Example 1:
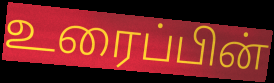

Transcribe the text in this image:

உரைப்பின்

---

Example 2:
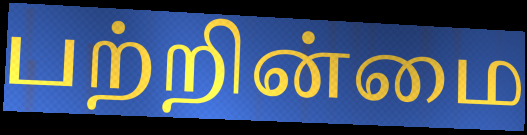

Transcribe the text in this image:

பற்றின்மை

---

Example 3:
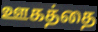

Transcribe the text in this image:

ஊகத்தை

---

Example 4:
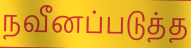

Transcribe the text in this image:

நவீனப்படுத்த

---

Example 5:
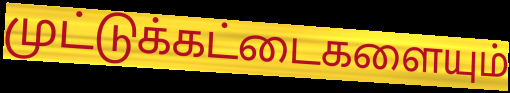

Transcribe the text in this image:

முட்டுக்கட்டைகளையும்